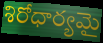
శిరోధార్యమై